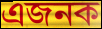
এজনক